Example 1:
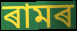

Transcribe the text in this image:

ৰামৰ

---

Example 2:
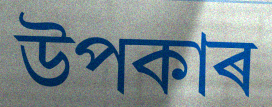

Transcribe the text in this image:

উপকাৰ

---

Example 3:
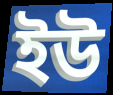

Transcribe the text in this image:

ইউ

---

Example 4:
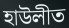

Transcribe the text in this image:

হাউলীত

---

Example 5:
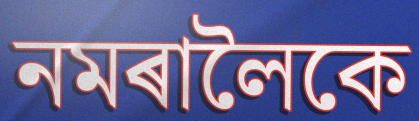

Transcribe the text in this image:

নমৰালৈকে